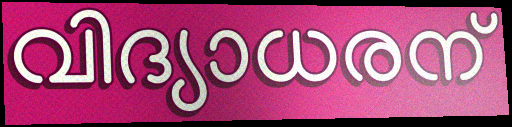
വിദ്യാധരന്